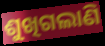
ଶୁଖିଗଲାଣି